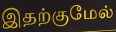
இதற்குமேல்